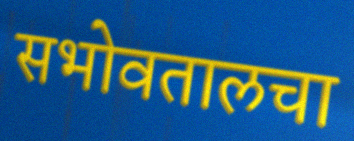
सभोवतालचा